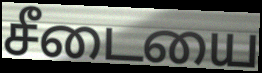
சீடையை